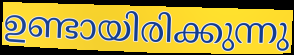
ഉണ്ടായിരിക്കുന്നു